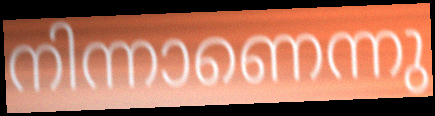
നിന്നാണെന്നു